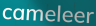
cameleer